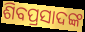
ଶିବପ୍ରସାଦଙ୍କ